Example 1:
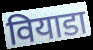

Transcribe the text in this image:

वियाडा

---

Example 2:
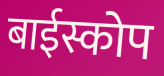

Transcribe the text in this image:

बाईस्कोप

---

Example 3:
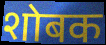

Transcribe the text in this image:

शोबक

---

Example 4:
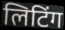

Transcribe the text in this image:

लिटिंग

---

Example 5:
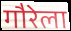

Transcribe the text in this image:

गौरेला